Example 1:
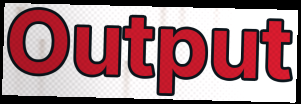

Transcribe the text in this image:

Output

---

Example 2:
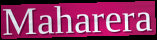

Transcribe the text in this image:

Maharera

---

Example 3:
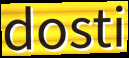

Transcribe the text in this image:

dosti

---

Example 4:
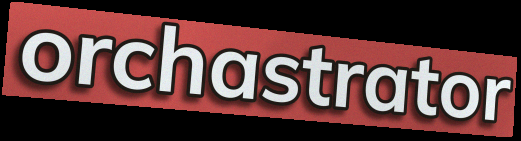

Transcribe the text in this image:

orchastrator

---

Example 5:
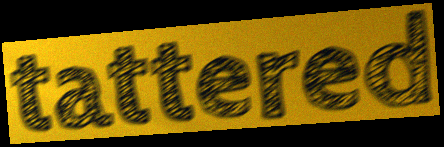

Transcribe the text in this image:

tattered